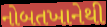
નોબતખાનેથી